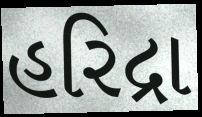
હરિદ્રા